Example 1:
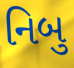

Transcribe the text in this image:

નિબુ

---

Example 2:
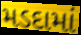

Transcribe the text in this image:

મડદામાં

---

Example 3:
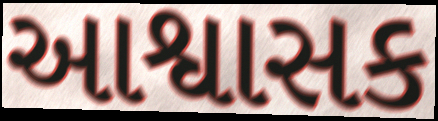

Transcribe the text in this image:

આશ્વાસક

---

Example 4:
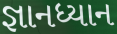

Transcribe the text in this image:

જ્ઞાનધ્યાન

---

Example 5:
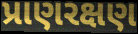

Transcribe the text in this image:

પ્રાણરક્ષણ